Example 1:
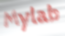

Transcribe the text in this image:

Mylab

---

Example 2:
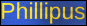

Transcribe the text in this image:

Phillipus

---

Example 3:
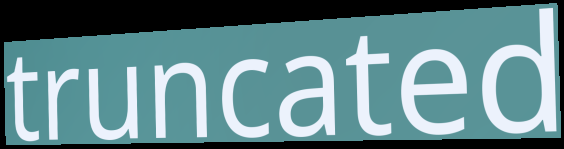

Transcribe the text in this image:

truncated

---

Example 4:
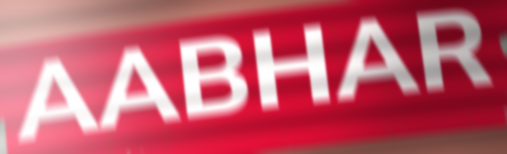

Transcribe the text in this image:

AABHAR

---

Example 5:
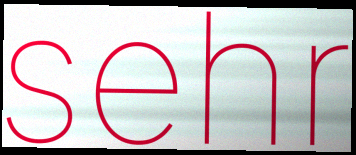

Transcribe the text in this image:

sehr